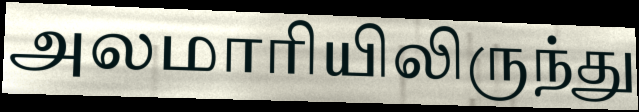
அலமாரியிலிருந்து